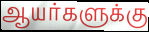
ஆயர்களுக்கு